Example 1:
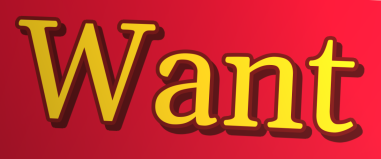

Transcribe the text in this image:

Want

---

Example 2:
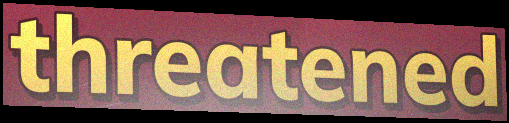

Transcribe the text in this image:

threatened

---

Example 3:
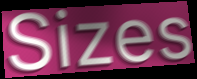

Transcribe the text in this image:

Sizes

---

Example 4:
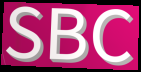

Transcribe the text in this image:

SBC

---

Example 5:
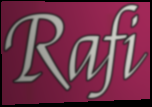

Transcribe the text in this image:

Rafi